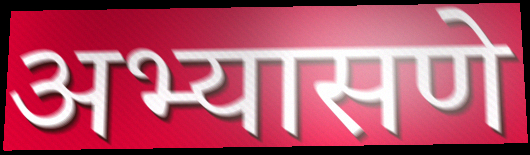
अभ्यासणे